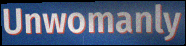
Unwomanly